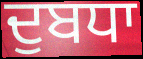
ਦੁਬਧਾ